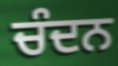
ਚੰਦਨ